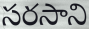
సరసాని